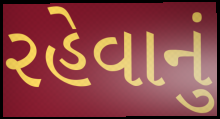
રહેવાનું